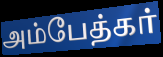
அம்பேத்கர்